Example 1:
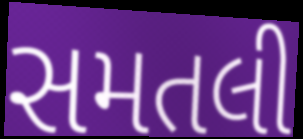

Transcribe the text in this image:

સમતલી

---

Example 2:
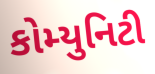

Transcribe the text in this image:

કોમ્યુનિટી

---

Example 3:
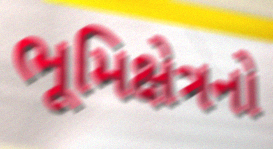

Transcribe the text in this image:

ભૂમિક્ષેત્રનો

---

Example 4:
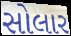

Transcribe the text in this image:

સોલાર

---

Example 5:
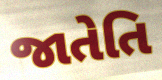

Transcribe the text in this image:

જાતેતિ